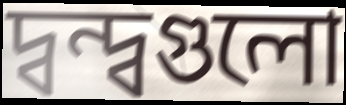
দ্বন্দ্বগুলো